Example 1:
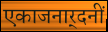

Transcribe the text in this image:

एकाजनार्दनीं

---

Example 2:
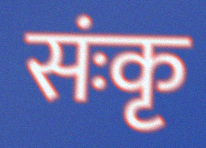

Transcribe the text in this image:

संःकृ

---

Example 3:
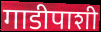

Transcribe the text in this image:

गाडीपाशी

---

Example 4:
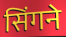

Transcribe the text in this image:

सिंगने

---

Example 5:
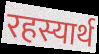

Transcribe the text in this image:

रहस्यार्थ